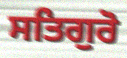
ਸਤਿਗੁਰੋ